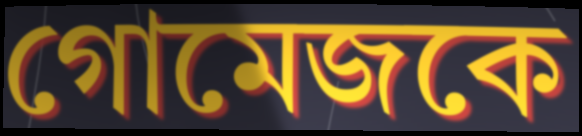
গোমেজকে